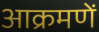
आक्रमणें